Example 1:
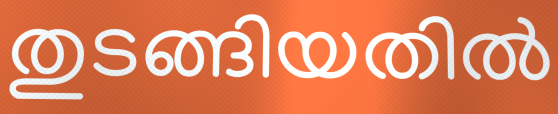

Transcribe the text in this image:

തുടങ്ങിയതിൽ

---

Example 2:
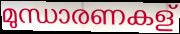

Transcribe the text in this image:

മുന്ധാരണകള്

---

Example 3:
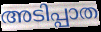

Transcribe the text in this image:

അടിപ്പാത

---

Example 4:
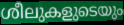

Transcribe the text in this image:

ശീലുകളുടെയും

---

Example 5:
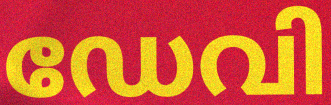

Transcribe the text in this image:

ഡേവി